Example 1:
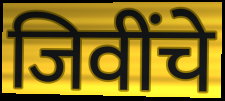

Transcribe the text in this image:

जिवींचे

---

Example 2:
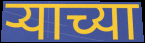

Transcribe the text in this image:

ऱ्याच्या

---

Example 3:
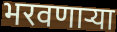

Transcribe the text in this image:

भरवणाऱ्या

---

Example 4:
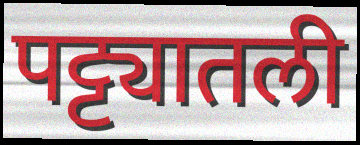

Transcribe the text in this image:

पट्ट्यातली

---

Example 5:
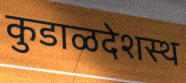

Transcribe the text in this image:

कुडाळदेशस्थ